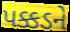
પક્કડને